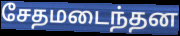
சேதமடைந்தன